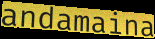
andamaina